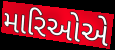
મારિઓએ